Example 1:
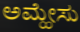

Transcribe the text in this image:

ಅಮ್ಹೇಸು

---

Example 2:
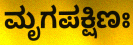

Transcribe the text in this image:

ಮೃಗಪಕ್ಷಿಣಃ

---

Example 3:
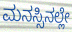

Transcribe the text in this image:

ಮನಸ್ಸಿನಲ್ಲೇ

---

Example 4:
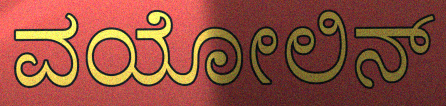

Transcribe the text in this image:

ವಯೋಲಿನ್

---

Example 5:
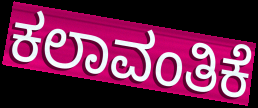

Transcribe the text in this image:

ಕಲಾವಂತಿಕೆ